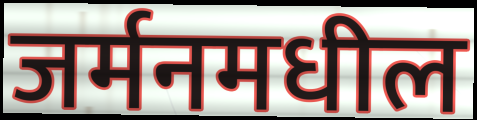
जर्मनमधील